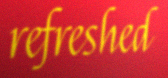
refreshed